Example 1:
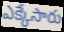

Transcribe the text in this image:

ఎక్కేసారు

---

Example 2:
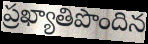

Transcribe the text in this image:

ప్రఖ్యాతిపొందిన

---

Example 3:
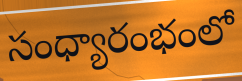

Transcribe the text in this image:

సంధ్యారంభంలో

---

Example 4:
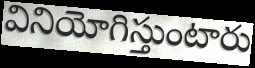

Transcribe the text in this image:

వినియోగిస్తుంటారు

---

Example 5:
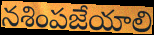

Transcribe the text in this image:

నశింపజేయాలి